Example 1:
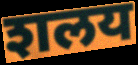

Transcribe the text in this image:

शलय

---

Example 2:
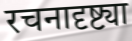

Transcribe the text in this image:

रचनादृष्ट्या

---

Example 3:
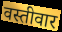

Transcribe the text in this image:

वस्तीवार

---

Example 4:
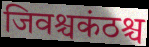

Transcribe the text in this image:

जिवश्चकंठश्च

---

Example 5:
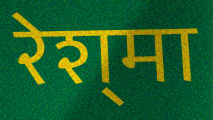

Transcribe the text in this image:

रेश्मा